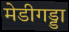
मेडीगड्डा